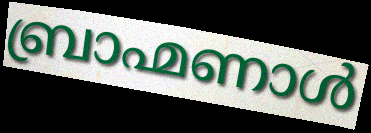
ബ്രാഹ്മണാൾ